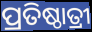
ପ୍ରତିଷ୍ଠାତ୍ରୀ